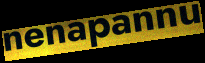
nenapannu